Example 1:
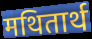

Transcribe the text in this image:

मथितार्थ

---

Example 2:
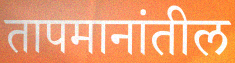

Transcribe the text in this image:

तापमानांतील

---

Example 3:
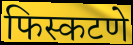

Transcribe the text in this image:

फिस्कटणे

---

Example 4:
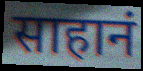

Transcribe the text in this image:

साहानं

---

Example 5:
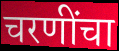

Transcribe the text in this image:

चरणींचा